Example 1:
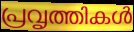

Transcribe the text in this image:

പ്രവൃത്തികൾ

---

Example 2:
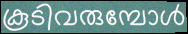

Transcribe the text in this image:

കൂടിവരുമ്പോൾ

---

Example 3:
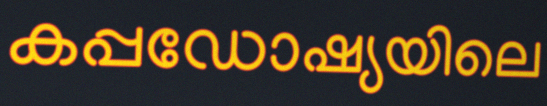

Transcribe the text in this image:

കപ്പഡോഷ്യയിലെ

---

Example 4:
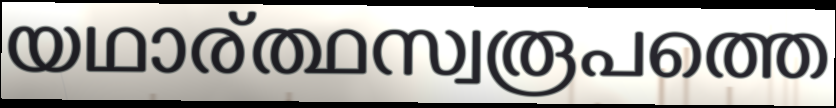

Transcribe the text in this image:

യഥാര്ത്ഥസ്വരൂപത്തെ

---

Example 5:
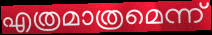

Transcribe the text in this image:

എത്രമാത്രമെന്ന്